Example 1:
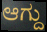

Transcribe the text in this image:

ಆಗ್ದು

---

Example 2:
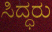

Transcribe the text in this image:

ಸಿದ್ಧರು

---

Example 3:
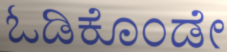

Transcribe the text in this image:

ಓಡಿಕೊಂಡೇ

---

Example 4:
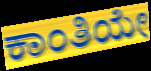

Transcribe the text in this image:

ಕಾಂತಿಯೇ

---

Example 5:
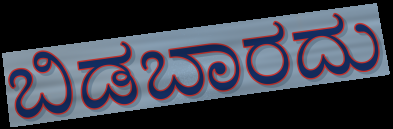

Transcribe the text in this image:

ಬಿಡಬಾರದು